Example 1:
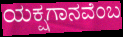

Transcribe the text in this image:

ಯಕ್ಷಗಾನವೆಂಬ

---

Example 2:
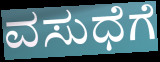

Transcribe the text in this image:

ವಸುಧೆಗೆ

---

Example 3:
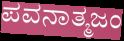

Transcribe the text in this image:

ಪವನಾತ್ಮಜಂ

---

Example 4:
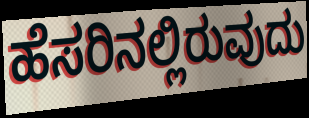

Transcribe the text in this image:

ಹೆಸರಿನಲ್ಲಿರುವುದು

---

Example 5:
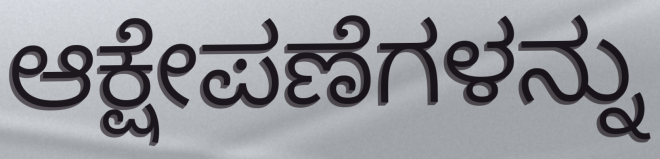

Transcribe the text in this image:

ಆಕ್ಷೇಪಣೆಗಳನ್ನು